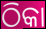
ଠିକା